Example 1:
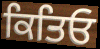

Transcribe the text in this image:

ਕਿਤਿਓ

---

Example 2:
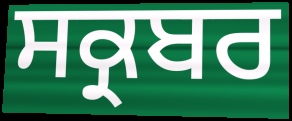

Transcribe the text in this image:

ਸਕ੍ਰਬਰ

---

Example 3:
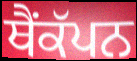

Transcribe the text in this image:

ਥੈਂਕੱਪਨ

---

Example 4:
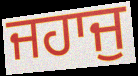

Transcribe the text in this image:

ਜਹਾਜੁ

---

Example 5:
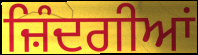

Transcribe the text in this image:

ਜ਼ਿੰਦਗੀਆਂ